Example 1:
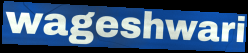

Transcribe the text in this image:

wageshwari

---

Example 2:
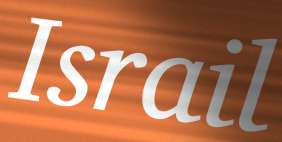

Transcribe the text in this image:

Israil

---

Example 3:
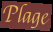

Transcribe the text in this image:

Plage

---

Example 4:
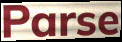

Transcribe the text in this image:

Parse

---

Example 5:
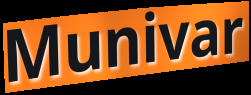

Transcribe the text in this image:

Munivar